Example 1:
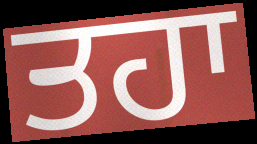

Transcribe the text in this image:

ਤਹਾ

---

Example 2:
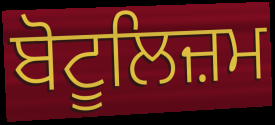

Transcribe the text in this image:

ਬੋਟੂਲਿਜ਼ਮ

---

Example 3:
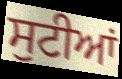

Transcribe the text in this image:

ਸੁਟੀਆਂ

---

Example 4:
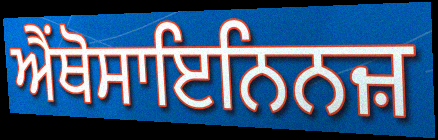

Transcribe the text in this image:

ਐਂਥੋਸਾਇਨਿਨਜ਼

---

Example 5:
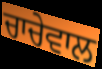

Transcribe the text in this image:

ਚਾਚੇਵਾਲ